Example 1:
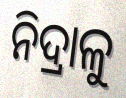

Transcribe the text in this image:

ନିଦ୍ରାଳୁ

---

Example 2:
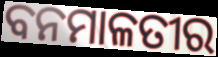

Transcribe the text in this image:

ବନମାଳତୀର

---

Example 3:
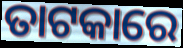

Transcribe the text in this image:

ତାଟକାରେ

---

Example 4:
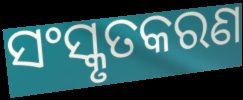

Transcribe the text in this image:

ସଂସ୍କୃତକରଣ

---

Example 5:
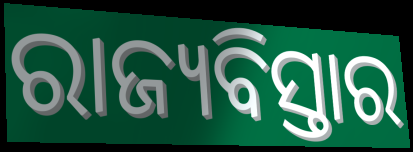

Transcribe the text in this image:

ରାଜ୍ୟବିସ୍ତାର